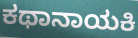
ಕಥಾನಾಯಕಿ